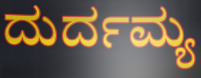
ದುರ್ದಮ್ಯ